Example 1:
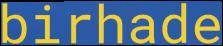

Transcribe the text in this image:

birhade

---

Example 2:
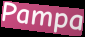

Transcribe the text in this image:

Pampa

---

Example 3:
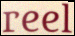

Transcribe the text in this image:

reel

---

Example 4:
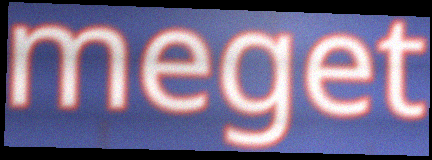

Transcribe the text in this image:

meget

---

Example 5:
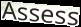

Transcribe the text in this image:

Assess